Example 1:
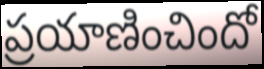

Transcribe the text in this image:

ప్రయాణించిందో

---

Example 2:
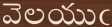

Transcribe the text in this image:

వెలయుఁ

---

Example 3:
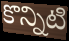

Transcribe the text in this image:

కొన్నిటి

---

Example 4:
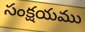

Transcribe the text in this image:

సంక్షయము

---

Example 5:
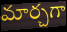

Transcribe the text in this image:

మార్చగా